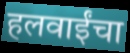
हलवाईंचा